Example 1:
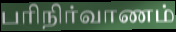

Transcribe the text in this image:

பரிநிர்வாணம்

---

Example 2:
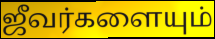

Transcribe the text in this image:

ஜீவர்களையும்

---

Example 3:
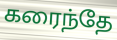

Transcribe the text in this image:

கரைந்தே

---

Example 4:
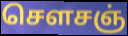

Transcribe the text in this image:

செளசஞ்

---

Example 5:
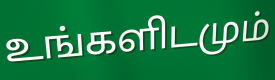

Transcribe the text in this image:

உங்களிடமும்